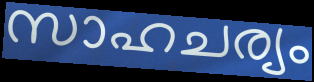
സാഹചര്യം